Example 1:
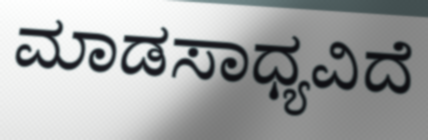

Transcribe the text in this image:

ಮಾಡಸಾಧ್ಯವಿದೆ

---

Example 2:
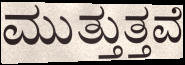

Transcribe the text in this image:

ಮುತ್ತುತ್ತವೆ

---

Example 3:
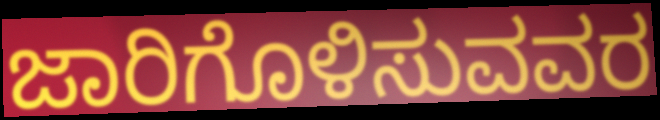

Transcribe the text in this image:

ಜಾರಿಗೊಳಿಸುವವರ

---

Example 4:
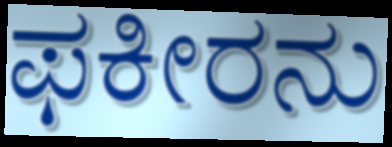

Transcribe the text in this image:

ಫಕೀರನು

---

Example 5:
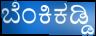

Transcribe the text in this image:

ಬೆಂಕಿಕಡ್ಡಿ